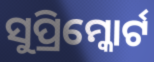
ସୁପ୍ରିମ୍କୋର୍ଟ